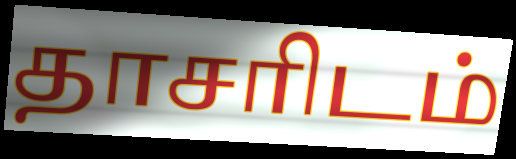
தாசரிடம்